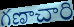
గణాచారి